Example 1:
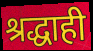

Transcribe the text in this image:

श्रद्धाही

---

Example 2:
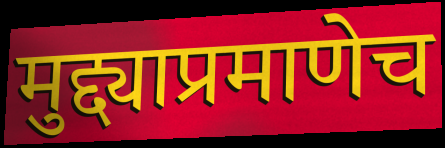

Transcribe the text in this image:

मुद्द्याप्रमाणेच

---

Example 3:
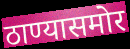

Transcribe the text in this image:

ठाण्यासमोर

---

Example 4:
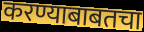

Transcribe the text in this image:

करण्याबाबतचा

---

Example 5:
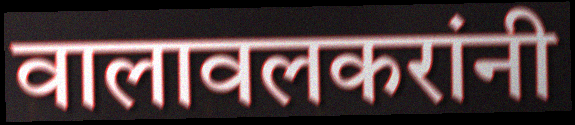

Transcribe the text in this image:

वालावलकरांनी